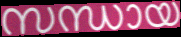
സന്ധായ